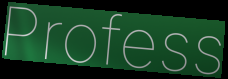
Profess